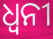
ଧ୍ବନୀ